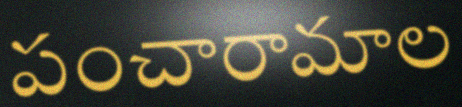
పంచారామాల